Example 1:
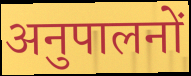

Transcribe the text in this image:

अनुपालनों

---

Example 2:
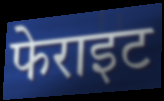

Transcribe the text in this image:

फेराइट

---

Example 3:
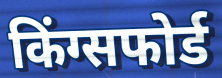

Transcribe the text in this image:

किंग्सफोर्ड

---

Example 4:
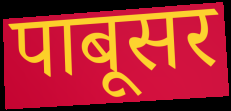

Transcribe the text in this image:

पाबूसर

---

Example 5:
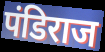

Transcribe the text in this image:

पंडिराज